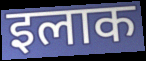
इलाक